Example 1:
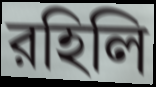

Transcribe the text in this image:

রহিলি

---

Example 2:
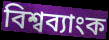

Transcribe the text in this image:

বিশ্বব্যাংক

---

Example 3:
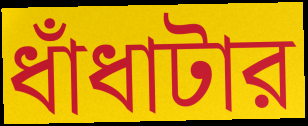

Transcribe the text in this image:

ধাঁধাটার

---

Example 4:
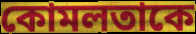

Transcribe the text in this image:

কোমলতাকে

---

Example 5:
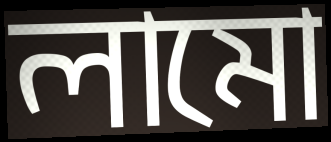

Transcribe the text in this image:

লামো